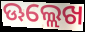
ଊଲ୍ଲେଖ